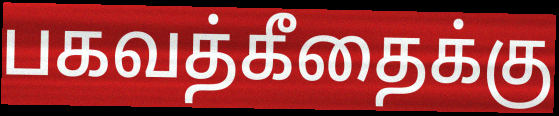
பகவத்கீதைக்கு